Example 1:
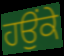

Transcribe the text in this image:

ਹਉਂਕੇ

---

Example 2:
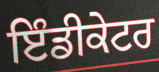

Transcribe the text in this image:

ਇੰਡੀਕੇਟਰ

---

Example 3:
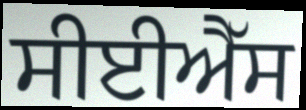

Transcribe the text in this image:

ਸੀਈਐੱਸ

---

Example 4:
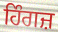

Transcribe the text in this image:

ਹਿੰਗਜ਼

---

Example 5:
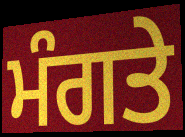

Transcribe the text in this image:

ਮੰਗਤੇ